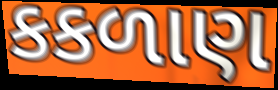
કકળાણ